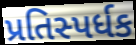
પ્રતિસ્પર્ધક